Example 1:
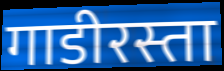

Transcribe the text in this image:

गाडीरस्ता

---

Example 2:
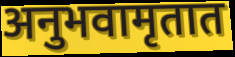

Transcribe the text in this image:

अनुभवामृतात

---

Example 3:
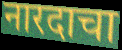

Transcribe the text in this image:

नारदाचा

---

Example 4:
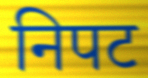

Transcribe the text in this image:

निपट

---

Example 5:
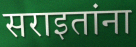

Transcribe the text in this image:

सराइतांना